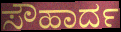
ಸೌಹಾರ್ದ